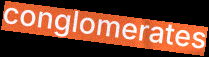
conglomerates